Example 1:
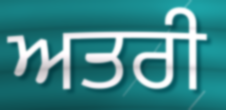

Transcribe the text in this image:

ਅਤਰੀ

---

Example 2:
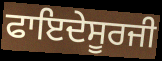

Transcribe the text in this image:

ਫਾਇਦੇਸੂਰਜੀ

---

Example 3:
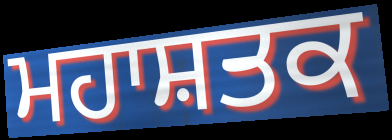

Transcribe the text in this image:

ਮਹਾਸ਼ਤਕ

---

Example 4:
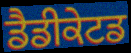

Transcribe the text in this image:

ਡੈਡੀਕੇਟਡ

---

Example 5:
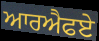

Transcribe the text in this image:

ਆਰਐਫਏ